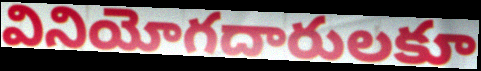
వినియోగదారులకూ